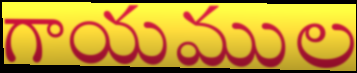
గాయముల